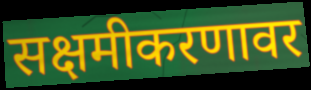
सक्षमीकरणावर